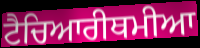
ਟੈਚਿਆਰੀਥਮੀਆ